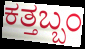
ಕತ್ತಬ್ಬಂ